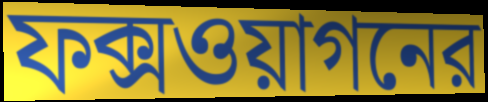
ফক্সওয়াগনের